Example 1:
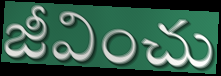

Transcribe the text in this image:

జీవించు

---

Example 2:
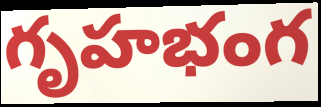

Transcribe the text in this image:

గృహభంగ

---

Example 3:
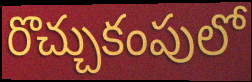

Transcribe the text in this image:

రొచ్చుకంపులో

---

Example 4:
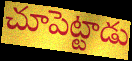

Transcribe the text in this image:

చూపెట్టాడు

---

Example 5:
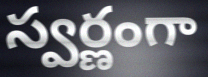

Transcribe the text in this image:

స్వర్ణంగా